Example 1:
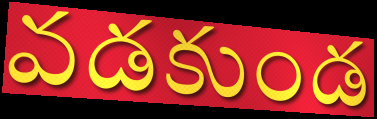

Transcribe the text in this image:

వడకుండ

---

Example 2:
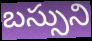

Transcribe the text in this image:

బస్సుని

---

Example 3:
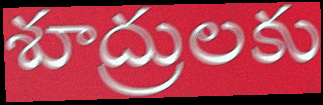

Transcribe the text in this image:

శూద్రులకు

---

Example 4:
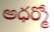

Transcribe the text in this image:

అధర్మో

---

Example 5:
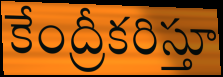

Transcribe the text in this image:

కేంద్రీకరిస్తూ